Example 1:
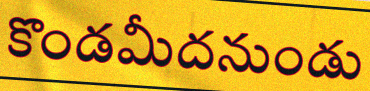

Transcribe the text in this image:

కొండమీదనుండు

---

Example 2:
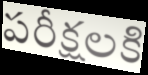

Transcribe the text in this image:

పరీక్షలకి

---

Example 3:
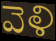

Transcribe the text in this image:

వెళి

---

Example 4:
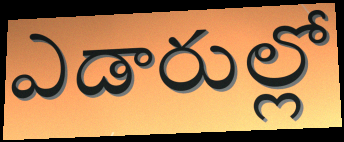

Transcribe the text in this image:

ఎడారుల్లో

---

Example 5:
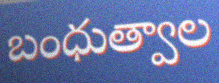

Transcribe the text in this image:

బంధుత్వాల